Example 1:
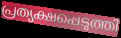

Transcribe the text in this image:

പ്രത്യക്ഷപ്പെടുത്തി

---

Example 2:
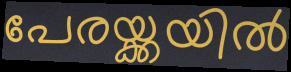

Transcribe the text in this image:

പേരയ്ക്കയിൽ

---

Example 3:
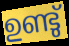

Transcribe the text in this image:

ഉണ്ടു്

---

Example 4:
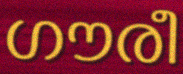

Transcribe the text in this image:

ഗൗരീ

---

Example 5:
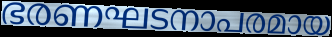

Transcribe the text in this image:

ഭരണഘടനാപരമായ